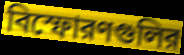
বিস্ফোরণগুলির